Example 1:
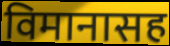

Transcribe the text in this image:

विमानासह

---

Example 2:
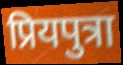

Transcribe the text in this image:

प्रियपुत्रा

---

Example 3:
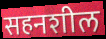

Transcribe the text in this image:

सहनशील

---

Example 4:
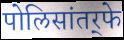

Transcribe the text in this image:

पोलिसांतर्फे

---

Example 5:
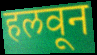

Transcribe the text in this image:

हलवून